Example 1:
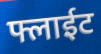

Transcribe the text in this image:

फ्लाईट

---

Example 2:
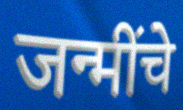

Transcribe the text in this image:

जन्मींचे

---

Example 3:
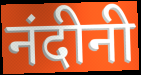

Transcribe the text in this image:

नंदीनी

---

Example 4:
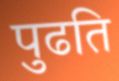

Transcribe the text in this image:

पुढति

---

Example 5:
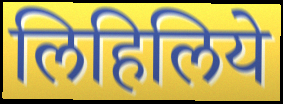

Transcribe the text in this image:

लिहिलिये